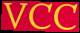
VCC